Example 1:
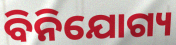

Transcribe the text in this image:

ବିନିଯୋଗ୍ୟ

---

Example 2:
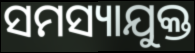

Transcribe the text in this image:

ସମସ୍ୟାଯୁକ୍ତ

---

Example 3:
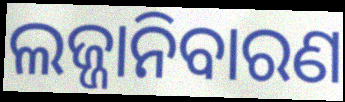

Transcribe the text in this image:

ଲଜ୍ଜାନିବାରଣ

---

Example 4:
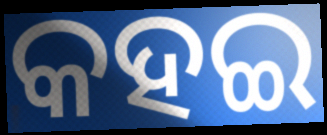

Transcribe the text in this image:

କହଇ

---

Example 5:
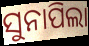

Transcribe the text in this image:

ସୁନାପିଲା